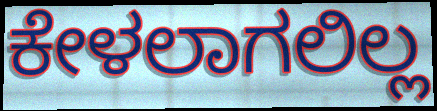
ಕೇಳಲಾಗಲಿಲ್ಲ